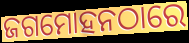
ଜଗମୋହନଠାରେ